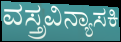
ವಸ್ತ್ರವಿನ್ಯಾಸಕಿ